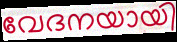
വേദനയായി